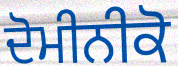
ਦੋਮੀਨੀਕੋ